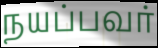
நயப்பவர்